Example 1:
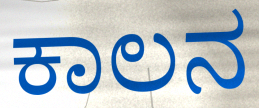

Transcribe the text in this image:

ಕಾಲನ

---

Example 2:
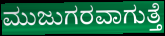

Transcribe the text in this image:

ಮುಜುಗರವಾಗುತ್ತೆ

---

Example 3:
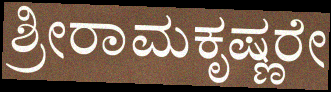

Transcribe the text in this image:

ಶ್ರೀರಾಮಕೃಷ್ಣರೇ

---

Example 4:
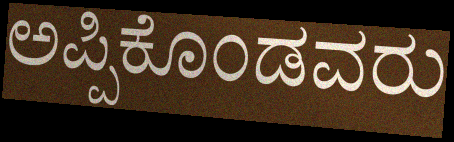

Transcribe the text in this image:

ಅಪ್ಪಿಕೊಂಡವರು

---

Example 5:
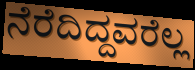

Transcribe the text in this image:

ನೆರೆದಿದ್ದವರೆಲ್ಲ